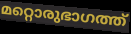
മറ്റൊരുഭാഗത്ത്